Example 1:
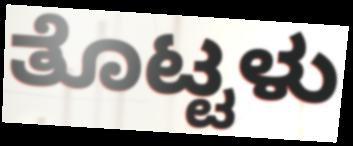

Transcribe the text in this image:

ತೊಟ್ಟಳು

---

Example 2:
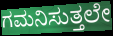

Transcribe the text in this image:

ಗಮನಿಸುತ್ತಲೇ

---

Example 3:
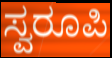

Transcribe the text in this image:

ಸ್ವರೂಪಿ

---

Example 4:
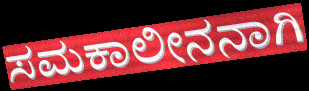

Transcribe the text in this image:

ಸಮಕಾಲೀನನಾಗಿ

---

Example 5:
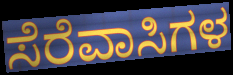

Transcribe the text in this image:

ಸೆರೆವಾಸಿಗಳ